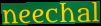
neechal